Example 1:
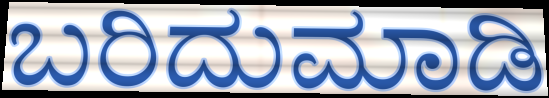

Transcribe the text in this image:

ಬರಿದುಮಾಡಿ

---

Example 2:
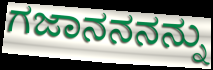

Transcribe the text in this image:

ಗಜಾನನನನ್ನು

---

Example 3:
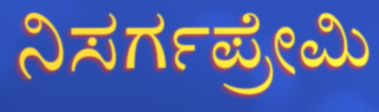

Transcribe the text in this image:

ನಿಸರ್ಗಪ್ರೇಮಿ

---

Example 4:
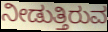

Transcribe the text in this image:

ನೀಡುತ್ತಿರುವ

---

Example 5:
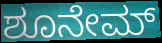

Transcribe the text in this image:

ಶೂನೇಮ್